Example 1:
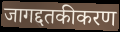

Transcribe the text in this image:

जागद्दतकीकरण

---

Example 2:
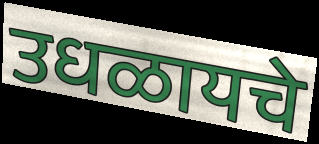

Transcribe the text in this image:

उधळायचे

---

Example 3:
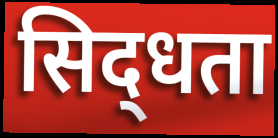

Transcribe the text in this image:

सिद्‌धता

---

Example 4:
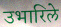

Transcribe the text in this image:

उभारिले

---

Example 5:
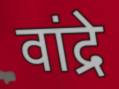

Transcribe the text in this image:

वांद्रे